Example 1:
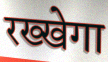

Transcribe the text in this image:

रख्खेगा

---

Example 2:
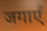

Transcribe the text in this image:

जगाएँ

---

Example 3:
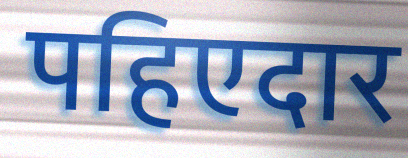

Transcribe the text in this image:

पहिएदार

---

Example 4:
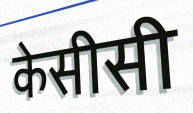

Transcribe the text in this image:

केसीसी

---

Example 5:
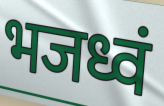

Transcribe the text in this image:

भजध्वं